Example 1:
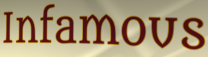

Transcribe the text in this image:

Infamous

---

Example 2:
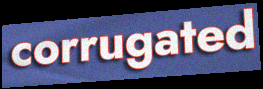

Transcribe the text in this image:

corrugated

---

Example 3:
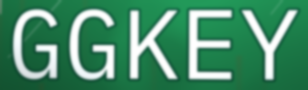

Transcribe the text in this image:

GGKEY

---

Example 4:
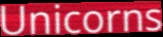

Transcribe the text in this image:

Unicorns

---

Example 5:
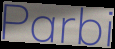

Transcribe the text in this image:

Parbi